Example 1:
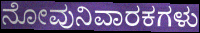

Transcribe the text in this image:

ನೋವುನಿವಾರಕಗಳು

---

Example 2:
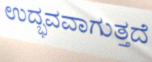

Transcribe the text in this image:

ಉದ್ಭವವಾಗುತ್ತದೆ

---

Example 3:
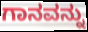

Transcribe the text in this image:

ಗಾನವನ್ನು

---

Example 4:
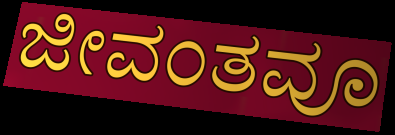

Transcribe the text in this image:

ಜೀವಂತವೂ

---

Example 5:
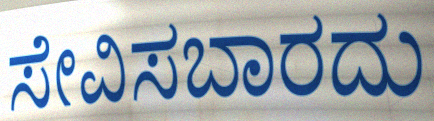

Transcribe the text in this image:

ಸೇವಿಸಬಾರದು